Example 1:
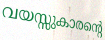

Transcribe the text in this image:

വയസ്സുകാരന്റെ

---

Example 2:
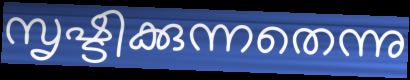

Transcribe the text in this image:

സൃഷ്ടിക്കുന്നതെന്നു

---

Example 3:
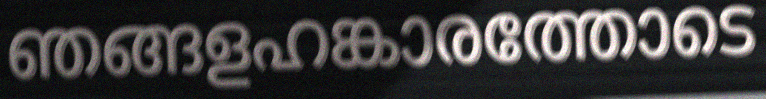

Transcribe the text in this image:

ഞങ്ങളഹങ്കാരത്തോടെ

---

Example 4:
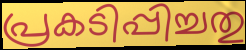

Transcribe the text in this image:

പ്രകടിപ്പിച്ചതു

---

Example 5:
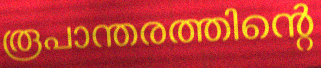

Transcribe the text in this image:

രൂപാന്തരത്തിന്റെ